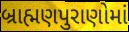
બ્રાહ્મણપુરાણોમાં